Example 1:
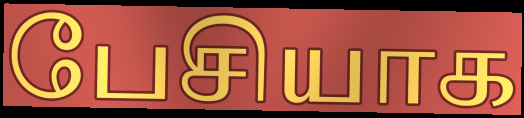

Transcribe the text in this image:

பேசியாக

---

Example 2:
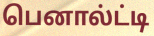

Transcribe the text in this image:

பெனால்ட்டி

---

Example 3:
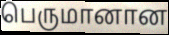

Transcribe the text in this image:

பெருமானான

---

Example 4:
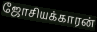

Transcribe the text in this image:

ஜோசியக்காரன்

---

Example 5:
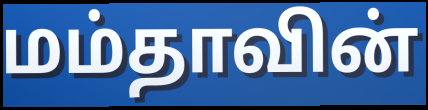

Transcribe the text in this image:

மம்தாவின்